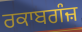
ਰਕਾਬਗੰਜ਼